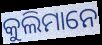
କୁଲିମାନେ